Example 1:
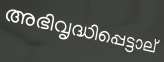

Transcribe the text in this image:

അഭിവൃദ്ധിപ്പെട്ടാല്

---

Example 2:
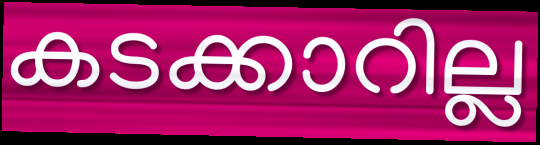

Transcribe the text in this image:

കടക്കാറില്ല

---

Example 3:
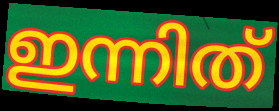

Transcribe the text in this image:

ഇന്നിത്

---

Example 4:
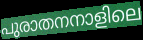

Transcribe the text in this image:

പുരാതനനാളിലെ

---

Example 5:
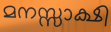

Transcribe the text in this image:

മനസ്സാക്ഷി